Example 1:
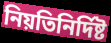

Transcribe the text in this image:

নিয়তিনির্দিষ্ট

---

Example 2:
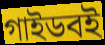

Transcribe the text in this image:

গাইডবই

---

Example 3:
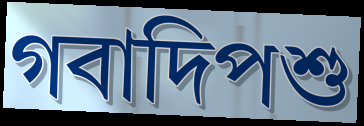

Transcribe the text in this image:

গবাদিপশু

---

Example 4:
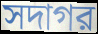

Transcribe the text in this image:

সদাগর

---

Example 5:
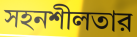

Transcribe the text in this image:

সহনশীলতার